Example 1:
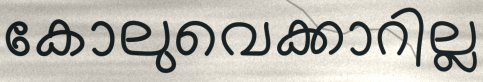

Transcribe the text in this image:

കോലുവെക്കാറില്ല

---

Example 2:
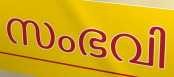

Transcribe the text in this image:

സംഭവി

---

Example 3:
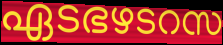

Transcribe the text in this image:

ഏടഭഴടറസ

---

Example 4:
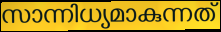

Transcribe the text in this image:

സാന്നിധ്യമാകുന്നത്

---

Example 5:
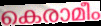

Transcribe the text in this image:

കെരാമീം